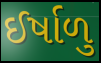
ઈર્ષાળુ